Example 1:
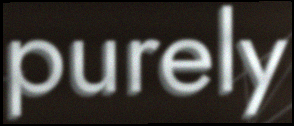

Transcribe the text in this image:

purely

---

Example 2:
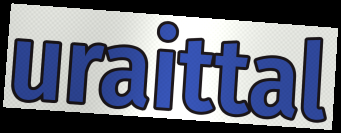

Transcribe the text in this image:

uraittal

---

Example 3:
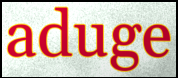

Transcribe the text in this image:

aduge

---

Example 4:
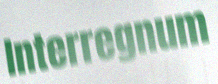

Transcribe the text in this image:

Interregnum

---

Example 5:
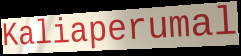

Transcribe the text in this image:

Kaliaperumal